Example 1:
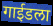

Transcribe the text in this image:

गाईडला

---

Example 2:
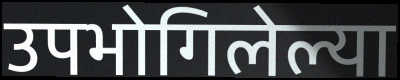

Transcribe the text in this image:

उपभोगिलेल्या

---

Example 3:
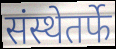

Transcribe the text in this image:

संस्थेतर्फे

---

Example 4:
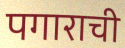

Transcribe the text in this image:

पगाराची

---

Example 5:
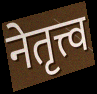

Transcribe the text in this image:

नेतृत्त्व